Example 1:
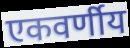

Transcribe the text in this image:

एकवर्णीय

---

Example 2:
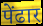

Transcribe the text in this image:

पेंढार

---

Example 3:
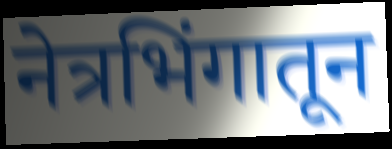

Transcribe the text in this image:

नेत्रभिंगातून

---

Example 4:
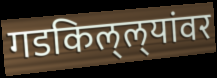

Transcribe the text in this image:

गडकिल्ल्यांवर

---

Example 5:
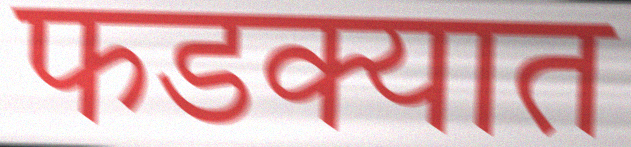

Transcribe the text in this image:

फडक्‍यात